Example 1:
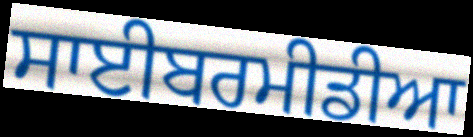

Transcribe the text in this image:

ਸਾਈਬਰਮੀਡੀਆ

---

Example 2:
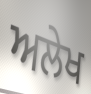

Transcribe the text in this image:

ਅਲੇਖ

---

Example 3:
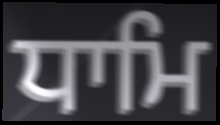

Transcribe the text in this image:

ਧਾਮਿ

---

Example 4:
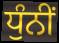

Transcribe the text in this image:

ਧੁੰਨੀਂ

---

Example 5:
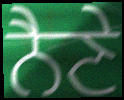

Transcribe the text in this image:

ਨੈਣੇ